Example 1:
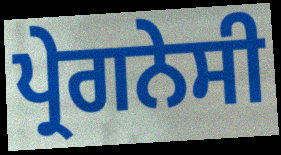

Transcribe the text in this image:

ਪ੍ਰੇਗਨੇਸੀ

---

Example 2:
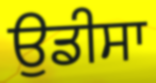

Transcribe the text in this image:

ਉਡੀਸਾ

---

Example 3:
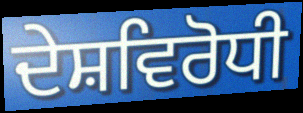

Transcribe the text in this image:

ਦੇਸ਼ਵਿਰੋਧੀ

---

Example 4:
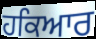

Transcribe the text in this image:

ਹਕਿਆਰ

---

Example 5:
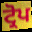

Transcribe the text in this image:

ਟ੍ਰੋਪ